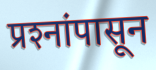
प्रश्नांपासून